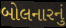
બોલનારનું